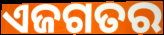
ଏଜଗତର